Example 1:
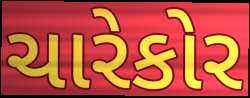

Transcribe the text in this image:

ચારેકોર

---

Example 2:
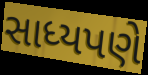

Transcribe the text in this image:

સાધ્યપણે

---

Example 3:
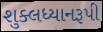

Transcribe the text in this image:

શુક્લધ્યાનરૂપી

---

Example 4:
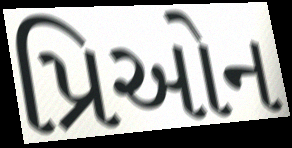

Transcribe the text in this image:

પ્રિઓન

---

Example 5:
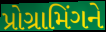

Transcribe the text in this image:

પ્રોગ્રામિંગને